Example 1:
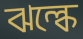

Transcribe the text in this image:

ঝল্কে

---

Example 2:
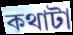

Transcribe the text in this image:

কথাটা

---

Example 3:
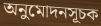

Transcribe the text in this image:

অনুমোদনসূচক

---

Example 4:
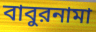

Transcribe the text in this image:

বাবুরনামা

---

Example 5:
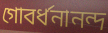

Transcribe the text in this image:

গোবর্ধনানন্দ